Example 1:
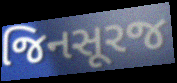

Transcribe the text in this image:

જિનસૂરજ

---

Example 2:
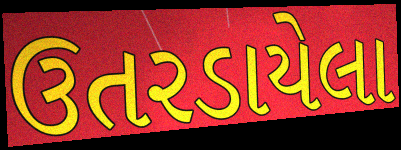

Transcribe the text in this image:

ઉતરડાયેલા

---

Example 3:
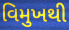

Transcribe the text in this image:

વિમુખથી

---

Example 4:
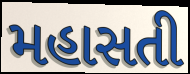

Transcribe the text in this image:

મહાસતી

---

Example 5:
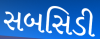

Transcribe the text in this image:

સબસિડી